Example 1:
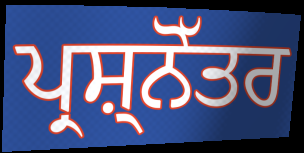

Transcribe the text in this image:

ਪ੍ਰਸ਼੍ਨੋੱਤਰ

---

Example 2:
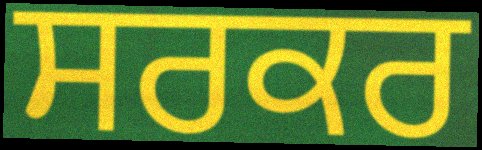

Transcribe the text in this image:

ਸਰਕਰ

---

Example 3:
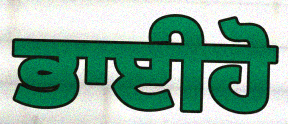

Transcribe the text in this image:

ਭਾਈਹੋ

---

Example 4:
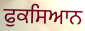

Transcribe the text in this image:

ਫੁਕਸਿਆਨ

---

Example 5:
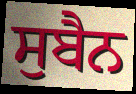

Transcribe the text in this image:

ਸੁਬੈਨ